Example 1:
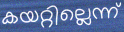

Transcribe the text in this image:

കയറ്റില്ലെന്ന്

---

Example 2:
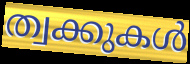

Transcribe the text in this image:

ത്വക്കുകൾ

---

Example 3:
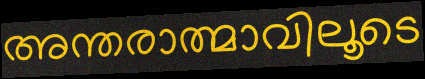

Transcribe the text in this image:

അന്തരാത്മാവിലൂടെ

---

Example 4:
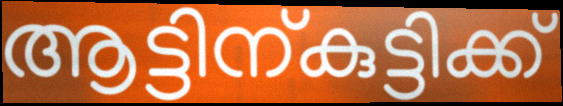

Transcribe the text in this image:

ആട്ടിന്കുട്ടിക്ക്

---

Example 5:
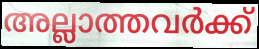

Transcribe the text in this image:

അല്ലാത്തവർക്ക്